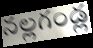
నల్లగండ్ల